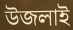
উজলাই